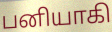
பனியாகி